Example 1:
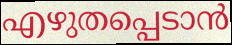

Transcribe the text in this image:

എഴുതപ്പെടാൻ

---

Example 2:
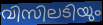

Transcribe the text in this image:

വിസിലടിയും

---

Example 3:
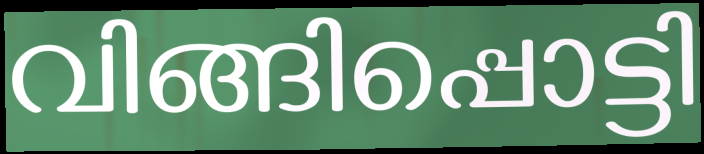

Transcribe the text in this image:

വിങ്ങിപ്പൊട്ടി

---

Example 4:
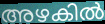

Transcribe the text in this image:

അഴകിൽ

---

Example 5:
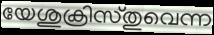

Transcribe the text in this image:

യേശുക്രിസ്തുവെന്ന